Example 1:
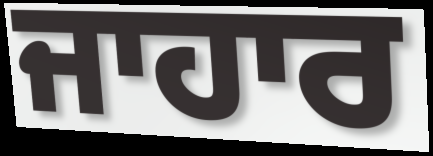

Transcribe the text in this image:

ਜਾਹਾਰ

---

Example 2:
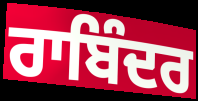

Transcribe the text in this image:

ਰਾਬਿੰਦਰ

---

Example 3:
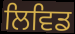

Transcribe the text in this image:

ਲਿਵਿਡ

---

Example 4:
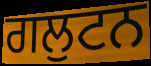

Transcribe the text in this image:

ਗਲੁਟਨ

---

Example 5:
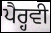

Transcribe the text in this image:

ਪੈਰ੍ਹਵੀ